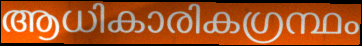
ആധികാരികഗ്രന്ഥം